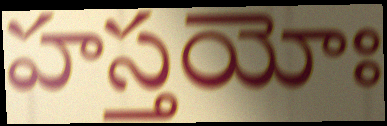
హస్తయోః